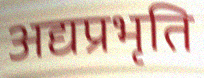
अद्यप्रभृति